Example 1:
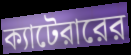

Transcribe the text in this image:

ক্যাটেরারের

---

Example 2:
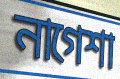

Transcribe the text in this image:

নাগেশা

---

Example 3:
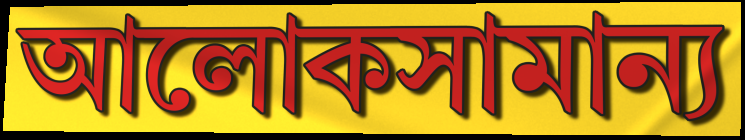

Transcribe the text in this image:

আলোকসামান্য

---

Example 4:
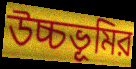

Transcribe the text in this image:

উচ্চভূমির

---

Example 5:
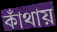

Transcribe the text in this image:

কাঁথায়